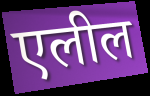
एलील